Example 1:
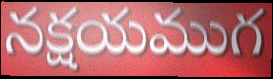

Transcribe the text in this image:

నక్షయముగ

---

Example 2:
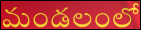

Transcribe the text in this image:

మండలంలో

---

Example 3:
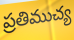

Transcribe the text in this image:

ప్రతిముచ్య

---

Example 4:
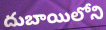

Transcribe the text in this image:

దుబాయిలోని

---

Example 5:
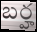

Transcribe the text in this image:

బర్హ